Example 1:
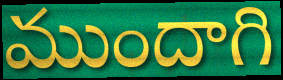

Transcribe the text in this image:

ముందాగి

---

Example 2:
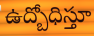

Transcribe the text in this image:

ఉద్బోధిస్తూ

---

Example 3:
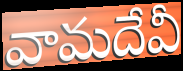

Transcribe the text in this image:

వామదేవీ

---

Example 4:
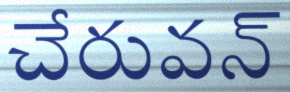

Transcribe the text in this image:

చేరువన్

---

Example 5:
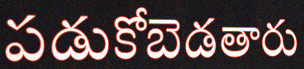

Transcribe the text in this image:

పడుకోబెడతారు